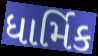
ધાર્મિક